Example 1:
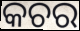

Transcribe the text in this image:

କଚର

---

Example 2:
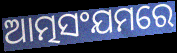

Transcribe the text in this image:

ଆତ୍ମସଂଯମରେ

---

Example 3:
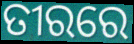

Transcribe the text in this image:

ତୀରରେ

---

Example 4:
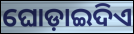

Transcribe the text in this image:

ଘୋଡ଼ାଇଦିଏ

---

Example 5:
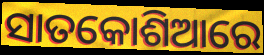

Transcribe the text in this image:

ସାତକୋଶିଆରେ